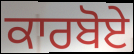
ਕਾਰਬੋਏ